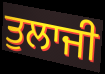
ਤੁਲਾਜੀ